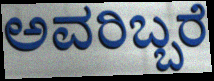
ಅವರಿಬ್ಬರೆ